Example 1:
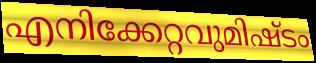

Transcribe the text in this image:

എനിക്കേറ്റവുമിഷ്ടം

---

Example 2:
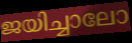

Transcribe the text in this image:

ജയിച്ചാലോ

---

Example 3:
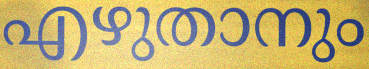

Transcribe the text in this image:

എഴുതാനും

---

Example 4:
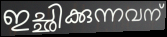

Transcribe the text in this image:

ഇച്ഛിക്കുന്നവന്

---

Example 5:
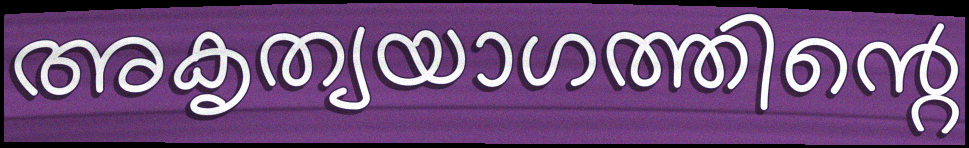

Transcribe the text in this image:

അകൃത്യയാഗത്തിന്റെ